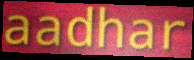
aadhar